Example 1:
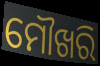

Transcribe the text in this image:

ମୌଖରି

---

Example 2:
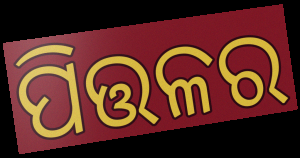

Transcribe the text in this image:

ପିତ୍ତଳର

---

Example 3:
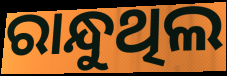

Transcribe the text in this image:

ରାନ୍ଧୁଥିଲ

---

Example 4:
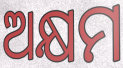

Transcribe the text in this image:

ଅକ୍ଷମ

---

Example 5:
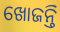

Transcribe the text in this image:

ଖୋଜନ୍ତି